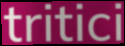
tritici